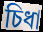
চিধা